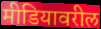
मीडियावरील